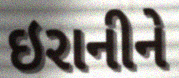
ઇરાનીને